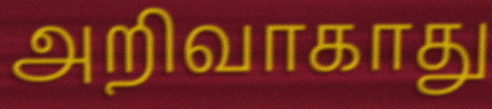
அறிவாகாது